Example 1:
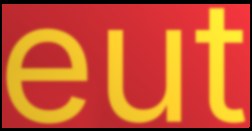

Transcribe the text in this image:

eut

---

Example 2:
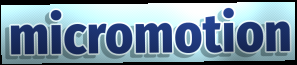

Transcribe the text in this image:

micromotion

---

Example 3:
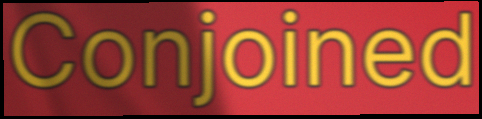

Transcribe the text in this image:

Conjoined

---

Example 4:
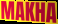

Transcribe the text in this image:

MAKHA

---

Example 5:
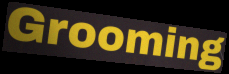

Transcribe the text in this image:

Grooming